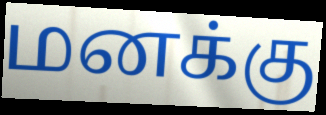
மனக்கு